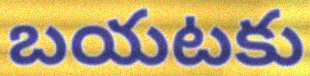
బయటకు